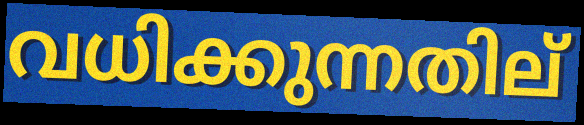
വധിക്കുന്നതില്